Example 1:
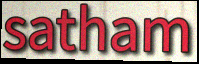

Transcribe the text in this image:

satham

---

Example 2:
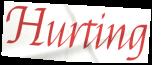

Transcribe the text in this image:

Hurting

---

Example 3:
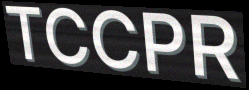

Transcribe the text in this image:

TCCPR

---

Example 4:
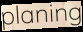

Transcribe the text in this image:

planing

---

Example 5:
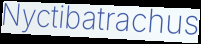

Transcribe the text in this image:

Nyctibatrachus